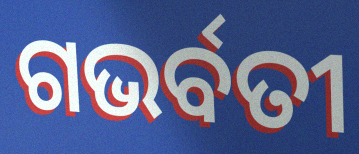
ଗଭର୍ବତୀ